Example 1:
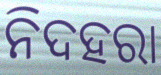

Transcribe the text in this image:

ନିଦହରା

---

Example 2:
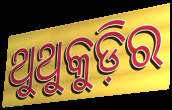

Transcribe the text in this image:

ଥୁଥୁକୁଡ଼ିର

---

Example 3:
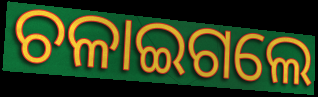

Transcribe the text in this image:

ଚଳାଇଗଲେ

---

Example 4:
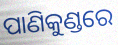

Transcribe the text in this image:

ପାଣିକୁଣ୍ଡରେ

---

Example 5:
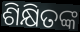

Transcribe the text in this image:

ଶିକ୍ଷିତଙ୍କ